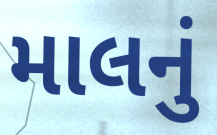
માલનું